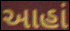
આહાં